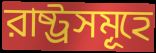
রাষ্ট্রসমূহে